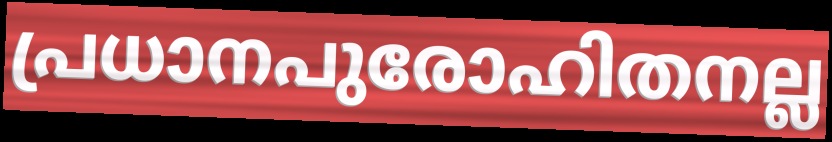
പ്രധാനപുരോഹിതനല്ല